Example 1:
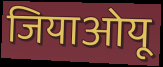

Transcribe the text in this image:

जियाओयू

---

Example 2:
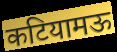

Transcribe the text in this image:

कटियामऊ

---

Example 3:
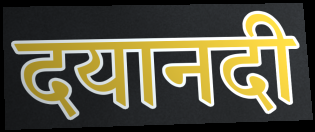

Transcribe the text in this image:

दयानदी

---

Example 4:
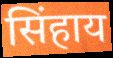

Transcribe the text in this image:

सिंहाय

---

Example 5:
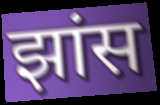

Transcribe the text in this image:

झांस